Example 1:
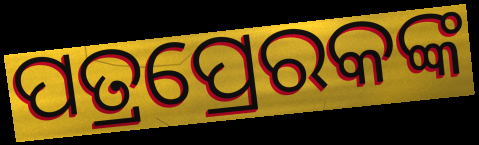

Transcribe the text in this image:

ପତ୍ରପ୍ରେରକଙ୍କ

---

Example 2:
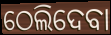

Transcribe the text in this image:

ଠେଲିଦେବା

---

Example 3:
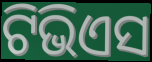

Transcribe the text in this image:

ଟିଭିଏସ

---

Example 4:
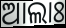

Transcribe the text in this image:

ଆଲାଃ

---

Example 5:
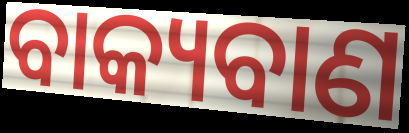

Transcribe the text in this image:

ବାକ୍ୟବାଣ